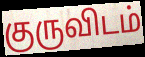
குருவிடம்